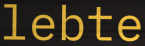
lebte